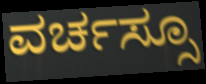
ವರ್ಚಸ್ಸೂ